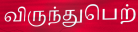
விருந்துபெற்